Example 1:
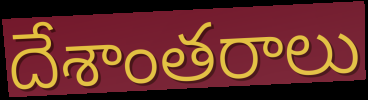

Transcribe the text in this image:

దేశాంతరాలు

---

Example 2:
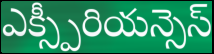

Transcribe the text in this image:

ఎక్స్పీరియన్సెస్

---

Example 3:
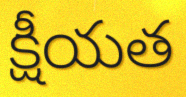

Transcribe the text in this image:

క్షీయత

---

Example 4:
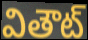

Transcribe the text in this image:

వితౌట్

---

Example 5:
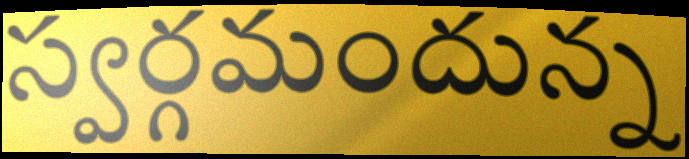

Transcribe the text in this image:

స్వర్గమందున్న